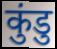
कुंडु